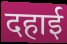
दहाई